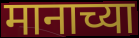
मानाच्या